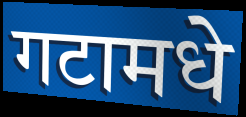
गटामधे